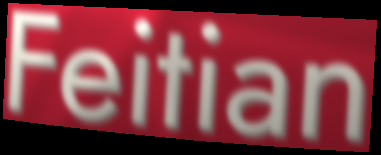
Feitian